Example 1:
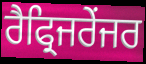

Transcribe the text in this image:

ਰੈਫ੍ਰਿਜਰੇਂਜਰ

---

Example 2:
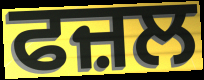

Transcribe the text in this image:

ਫਜ਼ਲ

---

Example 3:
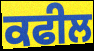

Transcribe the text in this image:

ਕਫੀਲ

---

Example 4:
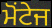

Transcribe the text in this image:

ਮੋਂਟੇਜ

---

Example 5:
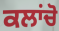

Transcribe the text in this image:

ਕਲਾਂਚੋ